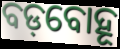
ବଡ଼ବୋହୂ